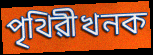
পৃথিৱীখনক